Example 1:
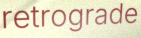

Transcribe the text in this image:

retrograde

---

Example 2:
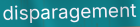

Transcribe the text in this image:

disparagement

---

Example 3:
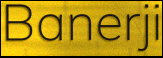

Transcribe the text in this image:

Banerji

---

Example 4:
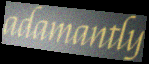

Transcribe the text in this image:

adamantly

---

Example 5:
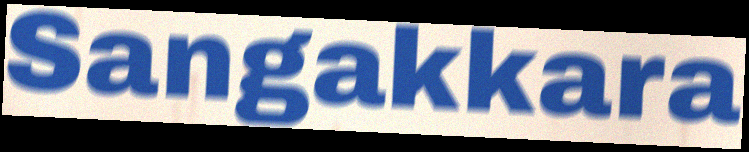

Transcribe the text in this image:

Sangakkara